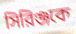
সিরিঞ্জকে